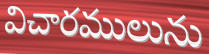
విచారములును